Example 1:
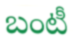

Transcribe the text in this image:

బంటీ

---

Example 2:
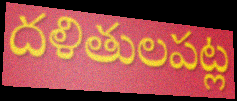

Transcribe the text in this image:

దళితులపట్ల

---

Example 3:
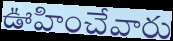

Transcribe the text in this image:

ఊహించేవారు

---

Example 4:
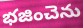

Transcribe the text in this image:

భజించెను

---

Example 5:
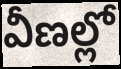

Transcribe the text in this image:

వీణల్లో